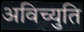
अविच्युति